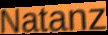
Natanz